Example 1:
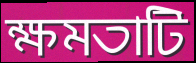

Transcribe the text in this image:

ক্ষমতাটি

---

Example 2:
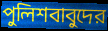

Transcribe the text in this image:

পুলিশবাবুদের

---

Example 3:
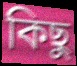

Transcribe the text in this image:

কিছু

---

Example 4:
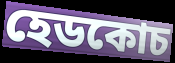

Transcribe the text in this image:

হেডকোচ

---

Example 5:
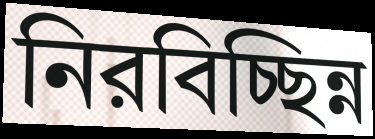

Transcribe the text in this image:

নিরবিচ্ছিন্ন